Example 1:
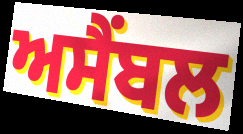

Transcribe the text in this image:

ਅਸੈਂਬਲ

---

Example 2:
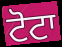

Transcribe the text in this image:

ਟੋਟਾ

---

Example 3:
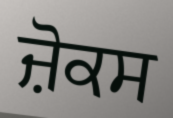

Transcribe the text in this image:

ਜ਼ੋਕਸ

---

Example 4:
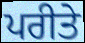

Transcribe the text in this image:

ਪਰੀਤੇ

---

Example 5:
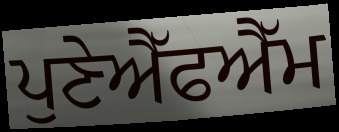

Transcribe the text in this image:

ਪੁਣੇਐੱਫਐੱਮ